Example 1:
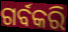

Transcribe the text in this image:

ଗର୍ବକରି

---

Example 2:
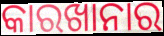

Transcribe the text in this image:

କାରଖାନାର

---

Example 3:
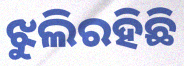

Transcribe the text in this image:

ଝୁଲିରହିଛି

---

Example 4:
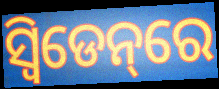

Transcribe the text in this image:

ସ୍ୱିଡେନ୍‌ରେ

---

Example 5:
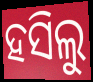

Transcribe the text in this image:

ହସିଲୁ